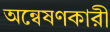
অন্বেষণকারী